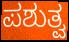
ಪಶುತ್ವ